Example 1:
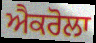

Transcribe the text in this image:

ਐਕਰੋਲਾ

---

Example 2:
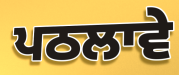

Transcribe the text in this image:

ਪਠਲਾਵੇ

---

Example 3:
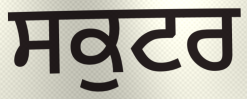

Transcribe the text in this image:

ਸਕੁਟਰ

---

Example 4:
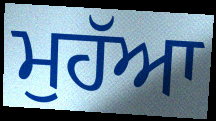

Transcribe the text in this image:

ਮੁਹੱਆ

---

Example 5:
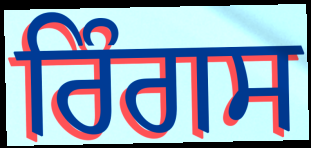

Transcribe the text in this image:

ਰਿੰਗਸ